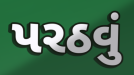
પરઠવું